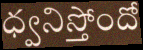
ధ్వనిస్తోందో